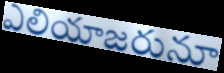
ఎలియాజరునూ